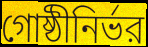
গোষ্ঠীনির্ভর